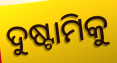
ଦୁଷ୍ଟାମିକୁ